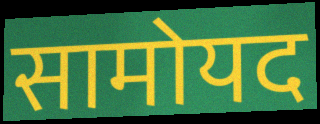
सामोयद